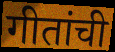
गीतांची